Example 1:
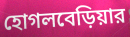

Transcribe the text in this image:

হোগলবেড়িয়ার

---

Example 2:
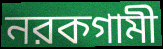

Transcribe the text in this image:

নরকগামী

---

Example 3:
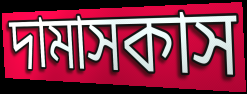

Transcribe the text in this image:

দামাসকাস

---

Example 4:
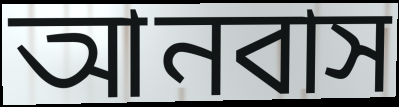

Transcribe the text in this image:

আনবাস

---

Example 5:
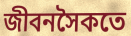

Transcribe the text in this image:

জীবনসৈকতে